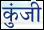
कुंजी